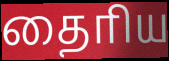
தைரிய